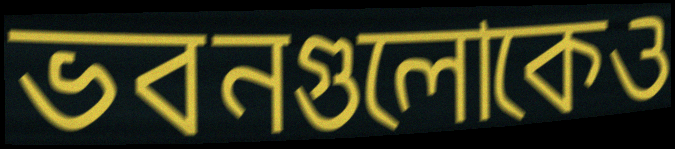
ভবনগুলোকেও